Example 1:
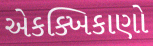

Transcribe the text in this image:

એકક્ખિકાણો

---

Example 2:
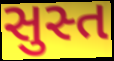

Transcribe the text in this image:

સુસ્ત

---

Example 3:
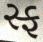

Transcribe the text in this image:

સ્ફ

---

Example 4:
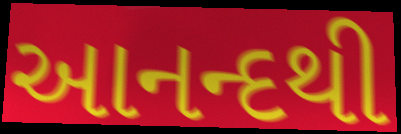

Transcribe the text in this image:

આનન્દથી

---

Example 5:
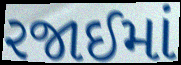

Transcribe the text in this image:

રજાઈમાં